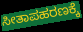
ಸೀತಾಪಹರಣಕ್ಕೆ